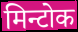
मिन्टोक